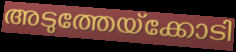
അടുത്തേയ്‌ക്കോടി